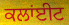
ਕਲਾਂਈਟ